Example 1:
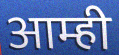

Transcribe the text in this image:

आम्‍ही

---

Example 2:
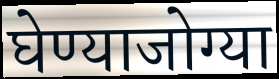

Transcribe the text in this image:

घेण्याजोग्या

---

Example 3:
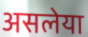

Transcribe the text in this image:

असलेया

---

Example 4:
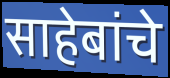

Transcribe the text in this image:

साहेबांचे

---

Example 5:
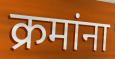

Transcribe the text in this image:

क्रमांना